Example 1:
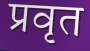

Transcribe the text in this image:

प्रवृत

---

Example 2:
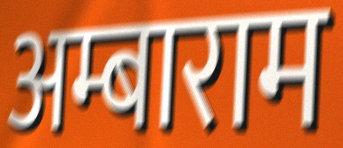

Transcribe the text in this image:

अम्बाराम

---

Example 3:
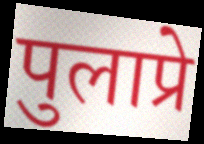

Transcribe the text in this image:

पुलाप्रे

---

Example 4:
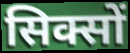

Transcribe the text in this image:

सिक्सों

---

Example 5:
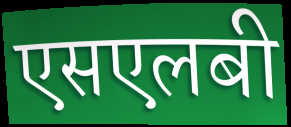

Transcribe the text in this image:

एसएलबी